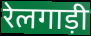
रेलगाड़ी